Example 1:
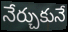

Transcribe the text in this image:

నేర్చుకునే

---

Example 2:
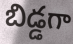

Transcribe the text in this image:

బిడ్డగా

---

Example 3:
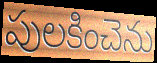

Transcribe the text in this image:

పులకించెను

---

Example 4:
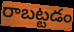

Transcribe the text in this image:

రాబట్టడం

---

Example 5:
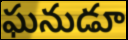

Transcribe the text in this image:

ఘనుడూ